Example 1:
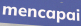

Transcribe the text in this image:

mencapai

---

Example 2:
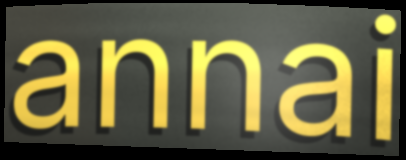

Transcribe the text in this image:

annai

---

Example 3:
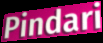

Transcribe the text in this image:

Pindari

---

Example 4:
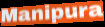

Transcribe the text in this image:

Manipura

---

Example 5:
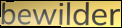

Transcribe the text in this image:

bewilder